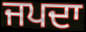
ਜਪਦਾ